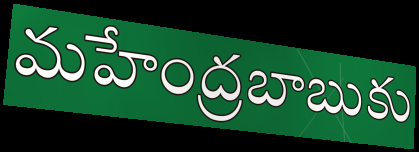
మహేంద్రబాబుకు